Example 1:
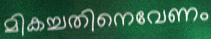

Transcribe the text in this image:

മികച്ചതിനെവേണം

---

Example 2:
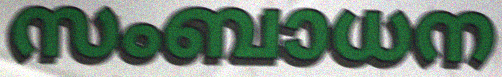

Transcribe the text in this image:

സംബാധന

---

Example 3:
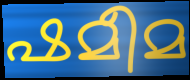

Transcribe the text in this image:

ഷമീമ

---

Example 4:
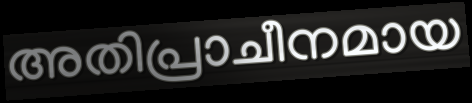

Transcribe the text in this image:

അതിപ്രാചീനമായ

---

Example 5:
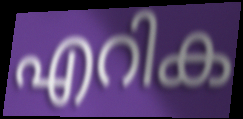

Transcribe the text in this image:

എറിക